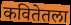
कवितेतला